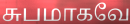
சுபமாகவே